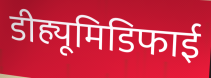
डीह्यूमिडिफाई